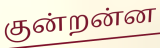
குன்றன்ன